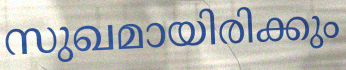
സുഖമായിരിക്കും